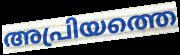
അപ്രിയത്തെ